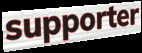
supporter